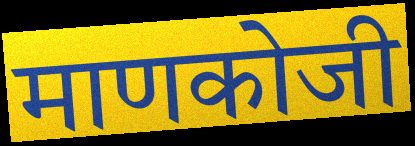
माणकोजी